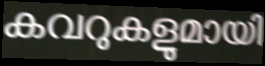
കവറുകളുമായി